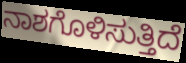
ನಾಶಗೊಳಿಸುತ್ತಿದೆ